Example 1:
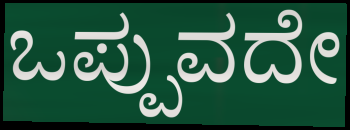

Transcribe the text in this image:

ಒಪ್ಪುವದೇ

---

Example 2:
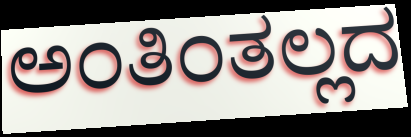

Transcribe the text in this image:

ಅಂತಿಂತಲ್ಲದ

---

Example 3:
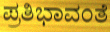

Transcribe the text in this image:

ಪ್ರತಿಭಾವಂತೆ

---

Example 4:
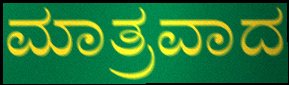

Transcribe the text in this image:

ಮಾತ್ರವಾದ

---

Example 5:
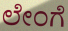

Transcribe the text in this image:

ಲೇಂಗೆ